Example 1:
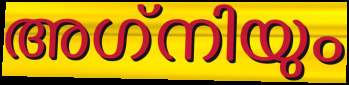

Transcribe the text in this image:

അഗ്‌നിയും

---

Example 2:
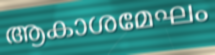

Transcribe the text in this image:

ആകാശമേഘം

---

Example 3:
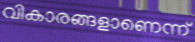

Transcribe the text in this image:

വികാരങ്ങളാണെന്ന്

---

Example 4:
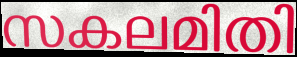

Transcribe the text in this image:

സകലമിതി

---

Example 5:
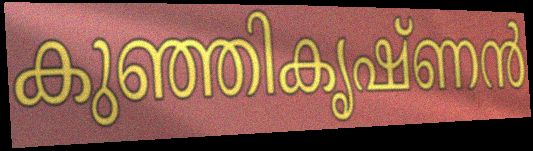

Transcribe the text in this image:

കുഞ്ഞികൃഷ്ണൻ